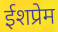
ईशप्रेम